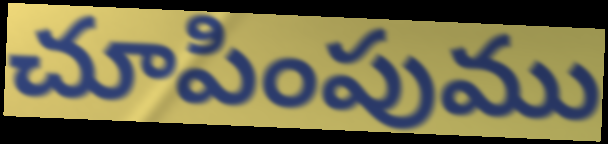
చూపింపుము